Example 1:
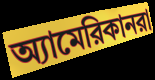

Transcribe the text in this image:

অ্যামেরিকানরা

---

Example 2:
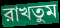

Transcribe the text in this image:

রাখতুম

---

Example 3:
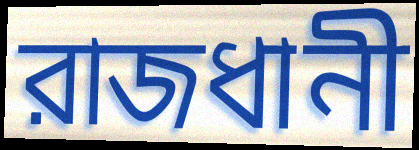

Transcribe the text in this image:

রাজধানী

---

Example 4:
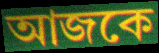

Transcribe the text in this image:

আজকে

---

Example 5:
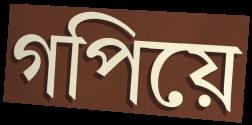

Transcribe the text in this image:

গপিয়ে